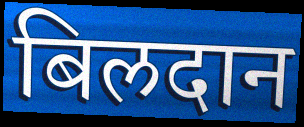
बिलदान